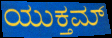
ಯುಕ್ತಮ್